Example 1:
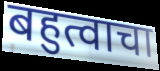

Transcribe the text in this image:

बहुत्वाचा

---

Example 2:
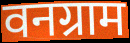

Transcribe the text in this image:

वनग्राम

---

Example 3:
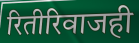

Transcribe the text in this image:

रितीरिवाजही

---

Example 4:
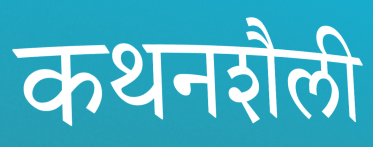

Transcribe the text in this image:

कथनशैली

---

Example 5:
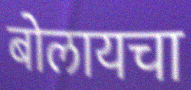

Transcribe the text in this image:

बोलायचा